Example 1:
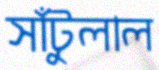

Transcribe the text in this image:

সাঁটুলাল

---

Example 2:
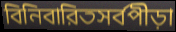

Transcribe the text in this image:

বিনিবারিতসর্বপীড়া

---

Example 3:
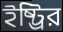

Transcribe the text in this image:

ইষ্ট্রির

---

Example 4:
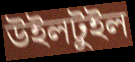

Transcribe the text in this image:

উইলটুইল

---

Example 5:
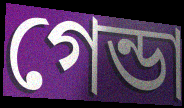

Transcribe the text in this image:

গেন্ডা